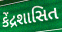
કેંદ્રશાસિત